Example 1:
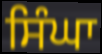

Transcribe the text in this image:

ਸਿੰਘਾ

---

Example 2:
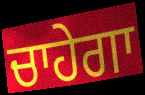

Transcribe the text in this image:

ਚਾਹੇਗਾ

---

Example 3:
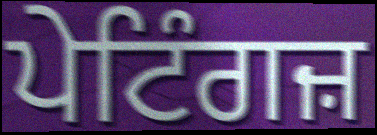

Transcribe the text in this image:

ਪੇਟਿੰਗਜ਼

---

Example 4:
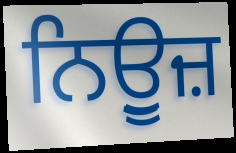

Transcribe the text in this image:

ਨਿਉੂਜ਼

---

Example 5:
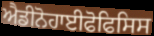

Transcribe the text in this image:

ਐਡੀਨੋਹਾਈਫੋਫਿਸਿਸ